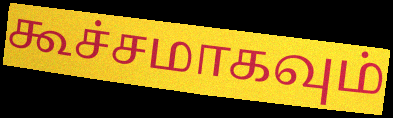
கூச்சமாகவும்